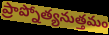
ప్రాప్నోత్యనుత్తమం